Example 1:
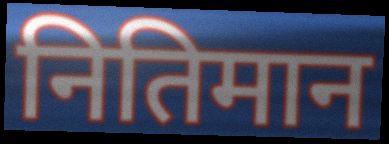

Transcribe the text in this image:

नितिमान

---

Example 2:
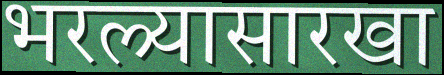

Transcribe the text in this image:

भरल्यासारखा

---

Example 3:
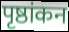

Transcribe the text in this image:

पृष्ठांकन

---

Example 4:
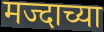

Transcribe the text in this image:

मज्दाच्या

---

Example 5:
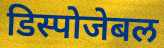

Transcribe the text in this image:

डिस्पोजेबल